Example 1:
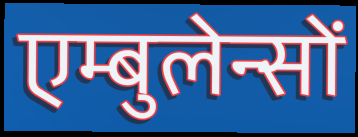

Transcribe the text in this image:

एम्बुलेन्सों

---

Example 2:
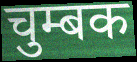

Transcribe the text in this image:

चुम्बक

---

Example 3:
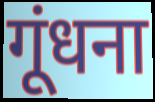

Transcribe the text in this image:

गूंधना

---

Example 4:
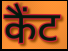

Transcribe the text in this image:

कैंट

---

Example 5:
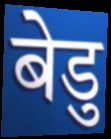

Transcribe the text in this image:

बेडु